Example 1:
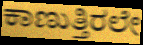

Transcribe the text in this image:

ಕಾಣುತ್ತಿರಲೇ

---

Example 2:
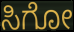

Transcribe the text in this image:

ಸಿಗೋ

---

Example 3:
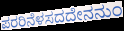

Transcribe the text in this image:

ಪರರಿನೆಳಸದದೇನನುಂ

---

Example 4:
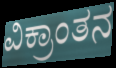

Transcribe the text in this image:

ವಿಕ್ರಾಂತನ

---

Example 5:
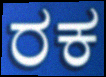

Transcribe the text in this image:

ರಕ